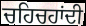
ਚਹਿਚਹਾਂਦੀ